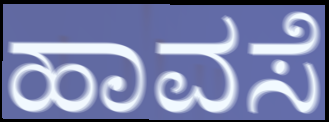
ಹಾವಸೆ